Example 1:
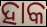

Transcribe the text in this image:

ହାକ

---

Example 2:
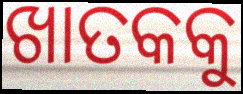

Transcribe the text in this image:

ଖାତକକୁ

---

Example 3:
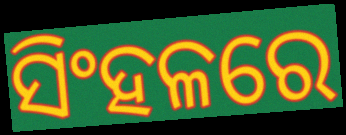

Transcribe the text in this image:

ସିଂହଳରେ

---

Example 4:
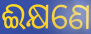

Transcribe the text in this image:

ଈକ୍ଷଣେ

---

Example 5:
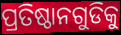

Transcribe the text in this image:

ପ୍ରତିଷ୍ଠାନଗୁଡିକୁ